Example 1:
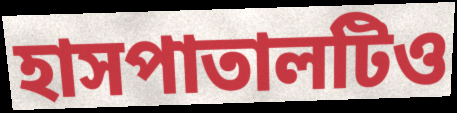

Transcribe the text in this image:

হাসপাতালটিও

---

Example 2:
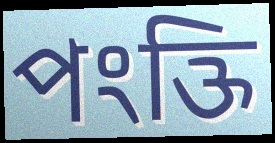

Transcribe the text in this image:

পংক্তি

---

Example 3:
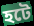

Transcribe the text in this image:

হটে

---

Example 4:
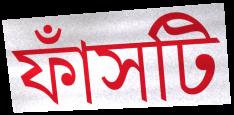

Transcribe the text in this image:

ফাঁসটি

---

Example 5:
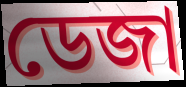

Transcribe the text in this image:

ডেজা